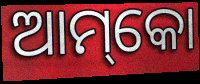
ଆମ୍‌କୋ